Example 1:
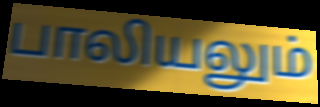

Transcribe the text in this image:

பாலியலும்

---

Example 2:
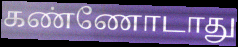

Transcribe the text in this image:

கண்ணோடாது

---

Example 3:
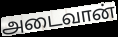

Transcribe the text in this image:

அடைவான்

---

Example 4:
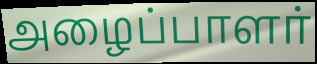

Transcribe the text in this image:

அழைப்பாளர்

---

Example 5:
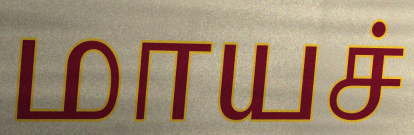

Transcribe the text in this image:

மாயச்